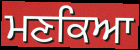
ਮਣਕਿਆ